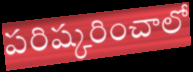
పరిష్కరించాలో